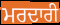
ਮਰਦਾਰੀ